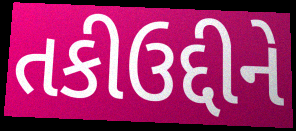
તકીઉદ્દીને